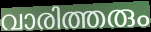
വാരിത്തരും